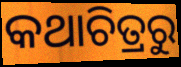
କଥାଚିତ୍ରରୁ